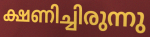
ക്ഷണിച്ചിരുന്നു